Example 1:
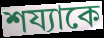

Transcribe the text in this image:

শয্যাকে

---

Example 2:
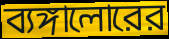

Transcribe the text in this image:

ব্যঙ্গালোরের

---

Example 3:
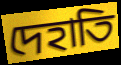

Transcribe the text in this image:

দেহাতি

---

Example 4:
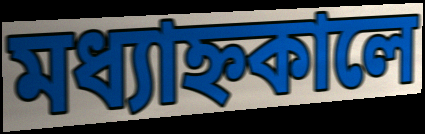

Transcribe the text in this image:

মধ্যাহ্নকালে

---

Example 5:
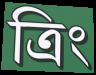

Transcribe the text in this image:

ত্রিং